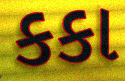
કકા